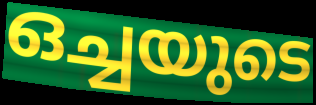
ഒച്ചയുടെ